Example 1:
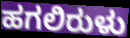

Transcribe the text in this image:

ಹಗಲಿರುಳು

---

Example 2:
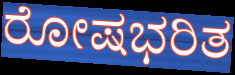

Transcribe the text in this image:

ರೋಷಭರಿತ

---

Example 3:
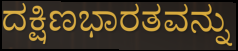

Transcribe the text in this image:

ದಕ್ಷಿಣಭಾರತವನ್ನು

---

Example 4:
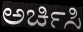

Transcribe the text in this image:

ಅರ್ಚಿಸಿ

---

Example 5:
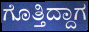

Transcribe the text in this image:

ಗೊತ್ತಿದ್ದಾಗ